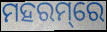
ମହରମ୍‌ରେ